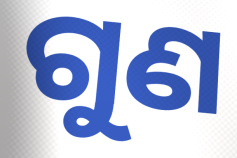
ଗୁଣ